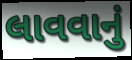
લાવવાનું